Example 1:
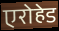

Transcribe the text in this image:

एरोहेड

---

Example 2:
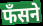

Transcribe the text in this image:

फँसने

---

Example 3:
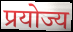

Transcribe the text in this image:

प्रयोज्य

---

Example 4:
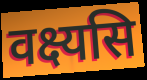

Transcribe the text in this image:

वक्ष्यसि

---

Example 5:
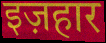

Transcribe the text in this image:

इज़हार